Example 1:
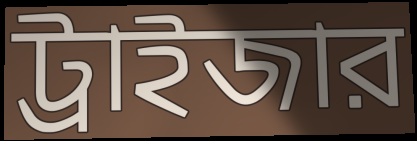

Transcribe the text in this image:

ট্রাইজার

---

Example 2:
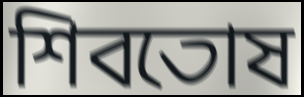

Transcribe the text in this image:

শিবতোষ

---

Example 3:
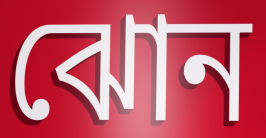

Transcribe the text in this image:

ঝোন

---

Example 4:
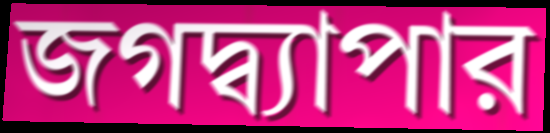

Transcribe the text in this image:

জগদ্ব্যাপার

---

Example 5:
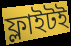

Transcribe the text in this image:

ফ্লাইটই